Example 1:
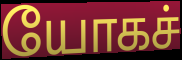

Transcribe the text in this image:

யோகச்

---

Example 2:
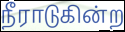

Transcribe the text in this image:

நீராடுகின்ற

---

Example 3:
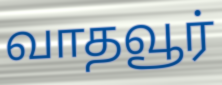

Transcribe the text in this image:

வாதவூர்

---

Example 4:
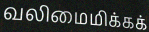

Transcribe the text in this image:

வலிமைமிக்கக்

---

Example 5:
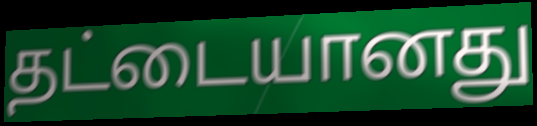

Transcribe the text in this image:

தட்டையானது